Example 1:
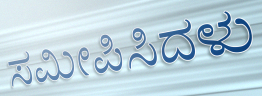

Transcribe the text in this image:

ಸಮೀಪಿಸಿದಳು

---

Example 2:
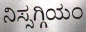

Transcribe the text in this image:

ನಿಸ್ಸಗ್ಗಿಯಂ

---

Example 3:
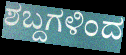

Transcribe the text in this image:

ಶಬ್ದಗಳಿಂದ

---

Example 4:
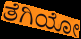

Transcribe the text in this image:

ತೆಗಿಯೋ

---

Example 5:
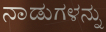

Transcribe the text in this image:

ನಾಡುಗಳನ್ನು